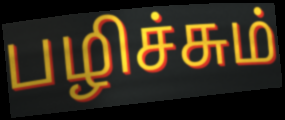
பழிச்சும்